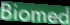
Biomed